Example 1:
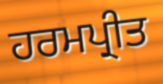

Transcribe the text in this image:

ਹਰਮਪ੍ਰੀਤ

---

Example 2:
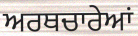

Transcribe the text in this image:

ਅਰਥਚਾਰੇਆਂ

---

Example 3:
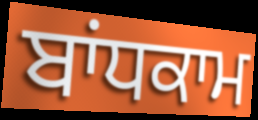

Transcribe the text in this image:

ਬਾਂਧਕਾਮ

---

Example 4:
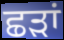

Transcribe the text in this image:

ਛੜਾਂ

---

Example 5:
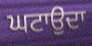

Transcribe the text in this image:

ਘਟਾਉੁਂਦਾ